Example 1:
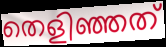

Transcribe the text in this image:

തെളിഞ്ഞത്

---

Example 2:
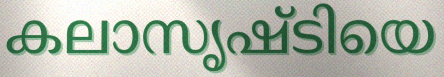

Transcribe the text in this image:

കലാസൃഷ്ടിയെ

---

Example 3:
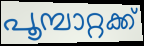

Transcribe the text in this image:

പൂമ്പാറ്റക്ക്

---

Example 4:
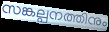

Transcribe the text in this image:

സങ്കല്പനത്തിനും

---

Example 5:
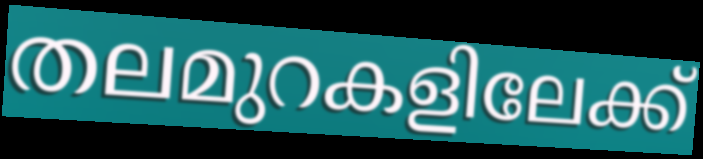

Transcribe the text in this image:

തലമുറകളിലേക്ക്